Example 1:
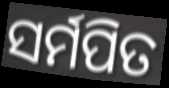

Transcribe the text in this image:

ସର୍ମପିତ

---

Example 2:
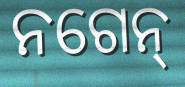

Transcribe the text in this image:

ନଗେନ୍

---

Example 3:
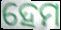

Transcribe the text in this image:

ହେମ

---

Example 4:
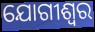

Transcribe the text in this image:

ଯୋଗୀଶ୍ୱର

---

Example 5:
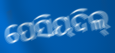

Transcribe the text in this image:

ପେସିୟଦିଲ୍